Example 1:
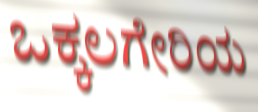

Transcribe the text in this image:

ಒಕ್ಕಲಗೇರಿಯ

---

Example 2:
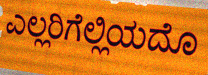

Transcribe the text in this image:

ಎಲ್ಲರಿಗೆಲ್ಲಿಯದೊ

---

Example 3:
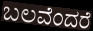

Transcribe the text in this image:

ಬಲವೆಂದರೆ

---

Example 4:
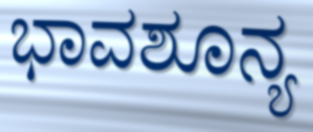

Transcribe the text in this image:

ಭಾವಶೂನ್ಯ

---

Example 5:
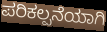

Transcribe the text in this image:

ಪರಿಕಲ್ಪನೆಯಾಗಿ